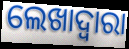
ଲେଖାଦ୍ୱାରା